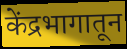
केंद्रभागातून